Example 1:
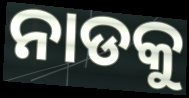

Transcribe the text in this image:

ନାଡକୁ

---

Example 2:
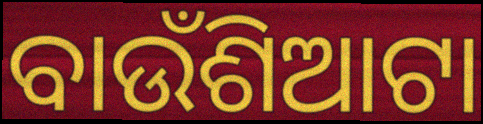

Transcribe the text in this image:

ବାଉଁଶିଆଟା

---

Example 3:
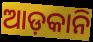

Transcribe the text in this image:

ଆଡ଼କାନି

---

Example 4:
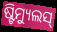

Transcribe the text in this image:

ଷ୍ଟିମ୍ୟୁଲସ୍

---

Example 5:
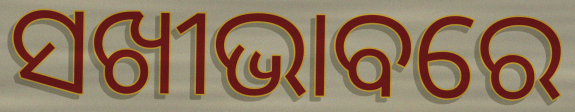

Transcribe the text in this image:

ସଖୀଭାବରେ